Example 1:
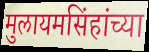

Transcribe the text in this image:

मुलायमसिंहांच्या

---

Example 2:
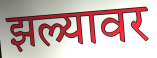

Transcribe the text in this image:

झल्यावर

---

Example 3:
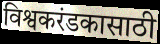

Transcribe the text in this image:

विश्वकरंडकासाठी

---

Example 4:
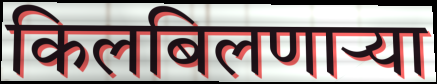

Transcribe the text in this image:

किलबिलणाऱ्या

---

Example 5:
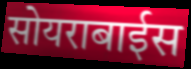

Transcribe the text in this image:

सोयराबाईस